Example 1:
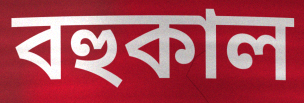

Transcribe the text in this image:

বহুকাল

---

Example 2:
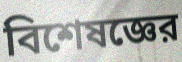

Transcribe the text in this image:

বিশেষজ্ঞের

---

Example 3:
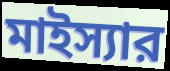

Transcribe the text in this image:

মাইস্যার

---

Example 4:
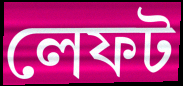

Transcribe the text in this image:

লেফট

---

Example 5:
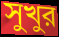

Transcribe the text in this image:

সুখুর